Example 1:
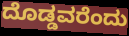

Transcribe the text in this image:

ದೊಡ್ಡವರೆಂದು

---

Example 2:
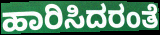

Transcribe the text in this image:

ಹಾರಿಸಿದರಂತೆ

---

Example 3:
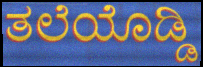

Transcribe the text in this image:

ತಲೆಯೊಡ್ಡಿ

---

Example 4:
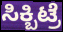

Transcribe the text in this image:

ಸಿಕ್ಬಿಟ್ರೆ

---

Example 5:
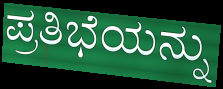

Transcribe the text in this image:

ಪ್ರತಿಭೆಯನ್ನು